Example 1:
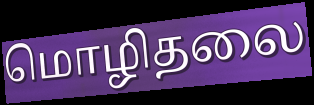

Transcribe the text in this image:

மொழிதலை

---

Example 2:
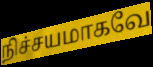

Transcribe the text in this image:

நிச்சயமாகவே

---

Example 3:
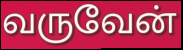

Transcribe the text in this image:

வருவேன்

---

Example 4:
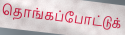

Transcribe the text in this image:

தொங்கப்போட்டுக்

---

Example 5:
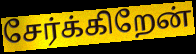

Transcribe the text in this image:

சேர்க்கிறேன்